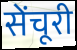
सेंचूरी